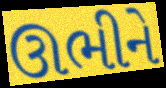
ઊભીને